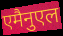
एमैनुएल